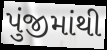
પુંજીમાંથી